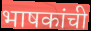
भाषकांची